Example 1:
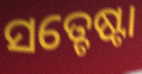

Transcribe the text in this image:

ସତ୍ଚେଷ୍ଟା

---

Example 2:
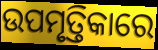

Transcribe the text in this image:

ଉପମୃତ୍ତିକାରେ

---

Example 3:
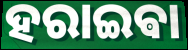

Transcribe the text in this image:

ହରାଇଵା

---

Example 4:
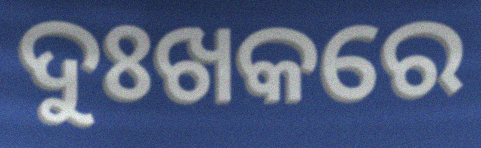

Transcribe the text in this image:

ଦୁଃଖକରେ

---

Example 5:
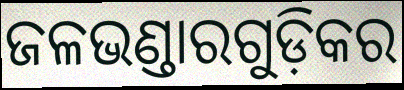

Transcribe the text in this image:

ଜଳଭଣ୍ଡାରଗୁଡ଼ିକର